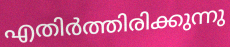
എതിർത്തിരിക്കുന്നു